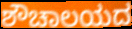
ಶೌಚಾಲಯದ